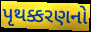
પૃથક્કરણનો